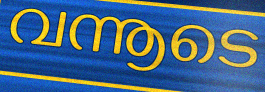
വന്നൂടെ